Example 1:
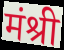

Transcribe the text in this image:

मंश्री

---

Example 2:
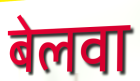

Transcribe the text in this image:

बेलवा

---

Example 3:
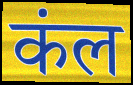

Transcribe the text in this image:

कंल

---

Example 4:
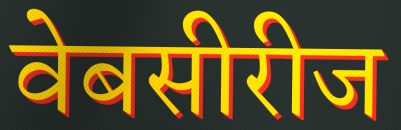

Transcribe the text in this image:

वेबसीरीज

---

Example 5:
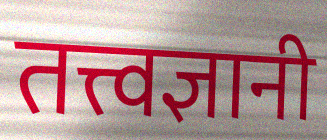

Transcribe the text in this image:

तत्त्वज्ञानी